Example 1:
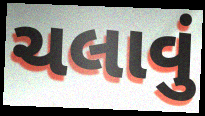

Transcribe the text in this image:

ચલાવું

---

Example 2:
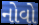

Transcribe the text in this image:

નોવો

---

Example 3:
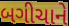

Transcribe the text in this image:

બગીચાને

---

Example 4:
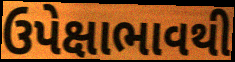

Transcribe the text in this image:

ઉપેક્ષાભાવથી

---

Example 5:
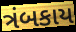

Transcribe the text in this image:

ત્રંબકાય